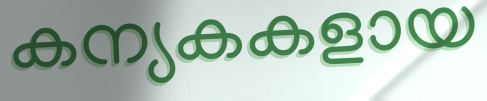
കന്യകകളായ